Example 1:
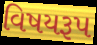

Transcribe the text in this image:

વિષયરૂપ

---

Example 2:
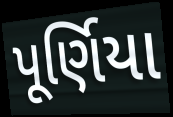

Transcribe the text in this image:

પૂર્ણિયા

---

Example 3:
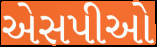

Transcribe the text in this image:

એસપીઓ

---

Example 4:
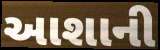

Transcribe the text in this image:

આશાની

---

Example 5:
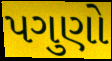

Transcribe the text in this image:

પગુણો